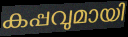
കപ്പവുമായി